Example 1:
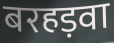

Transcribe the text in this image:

बरहड़वा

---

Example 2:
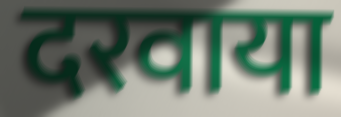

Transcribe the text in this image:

दरवाया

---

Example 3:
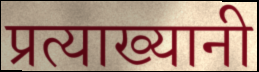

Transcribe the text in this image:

प्रत्याख्यानी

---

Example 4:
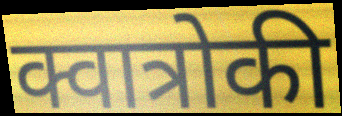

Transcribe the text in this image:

क्वात्रोकी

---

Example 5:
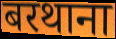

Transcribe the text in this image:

बरथाना